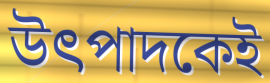
উৎপাদকেই